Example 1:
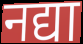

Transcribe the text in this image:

नद्या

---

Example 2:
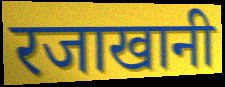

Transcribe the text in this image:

रजाखानी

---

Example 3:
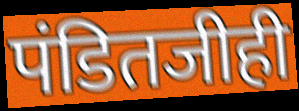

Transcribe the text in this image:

पंडितजीही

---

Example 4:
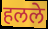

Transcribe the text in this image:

हलले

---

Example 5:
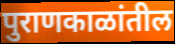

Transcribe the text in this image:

पुराणकाळांतील